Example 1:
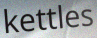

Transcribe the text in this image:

kettles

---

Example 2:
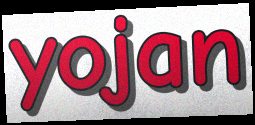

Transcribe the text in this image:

yojan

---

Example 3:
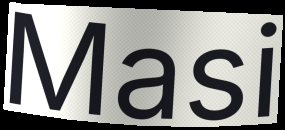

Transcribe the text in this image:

Masi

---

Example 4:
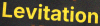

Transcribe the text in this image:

Levitation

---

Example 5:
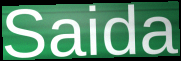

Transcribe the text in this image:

Saida